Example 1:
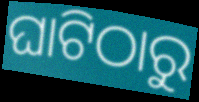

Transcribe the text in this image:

ଘାଟିଠାରୁ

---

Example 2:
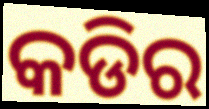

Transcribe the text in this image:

କଡିର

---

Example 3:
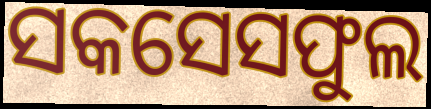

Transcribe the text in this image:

ସକସେସଫୁଲ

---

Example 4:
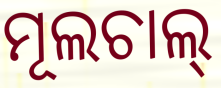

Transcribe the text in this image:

ମୂଲଚାଲ୍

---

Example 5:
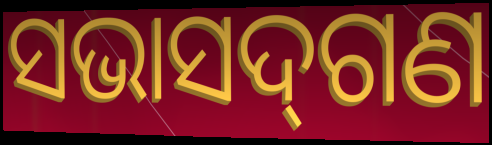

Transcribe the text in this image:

ସଭାସଦ୍‍ଗଣ